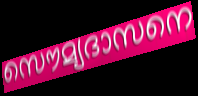
സൌമ്യദാസനെ